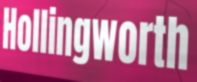
Hollingworth